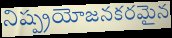
నిష్ప్రయోజనకరమైన